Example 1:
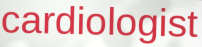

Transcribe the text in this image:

cardiologist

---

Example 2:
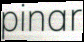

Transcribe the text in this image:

pinar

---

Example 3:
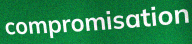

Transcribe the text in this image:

compromisation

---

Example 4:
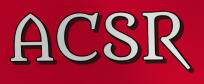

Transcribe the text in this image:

ACSR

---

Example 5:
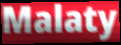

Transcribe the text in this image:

Malaty